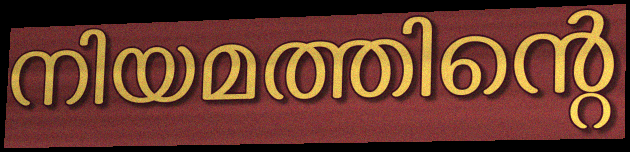
നിയമത്തിന്റെ